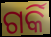
ଗର୍କି